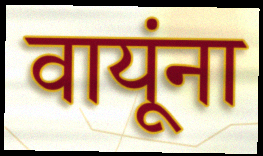
वायूंना